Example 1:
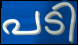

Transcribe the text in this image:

പടി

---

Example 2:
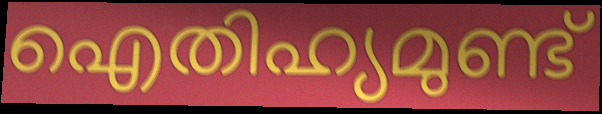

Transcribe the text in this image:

ഐതിഹ്യമുണ്ട്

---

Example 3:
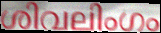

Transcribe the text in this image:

ശിവലിംഗം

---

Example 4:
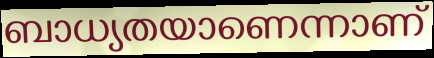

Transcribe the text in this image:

ബാധ്യതയാണെന്നാണ്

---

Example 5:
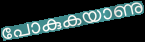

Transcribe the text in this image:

പോകുകയാണു